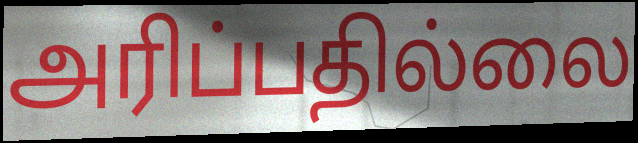
அரிப்பதில்லை